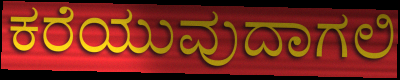
ಕರೆಯುವುದಾಗಲಿ